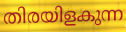
തിരയിളകുന്ന